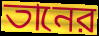
তানের